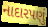
નાદારપણું